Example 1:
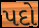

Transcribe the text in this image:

પદો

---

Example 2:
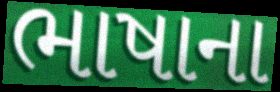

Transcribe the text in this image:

ભાષાના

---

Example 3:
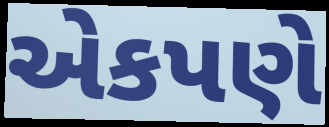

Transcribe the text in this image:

એકપણે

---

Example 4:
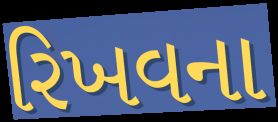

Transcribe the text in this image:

રિખવના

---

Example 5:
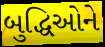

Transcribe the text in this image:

બુદ્ધિઓને